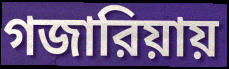
গজারিয়ায়